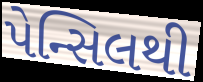
પેન્સિલથી